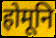
होमूनि